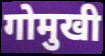
गोमुखी